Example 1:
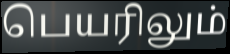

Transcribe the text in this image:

பெயரிலும்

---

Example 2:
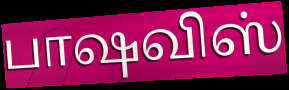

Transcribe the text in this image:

பாஷவிஸ்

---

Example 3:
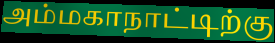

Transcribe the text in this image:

அம்மகாநாட்டிற்கு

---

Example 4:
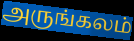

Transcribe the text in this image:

அருங்கலம்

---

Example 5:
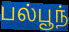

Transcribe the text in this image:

பல்பூந்